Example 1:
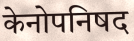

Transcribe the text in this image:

केनोपनिषद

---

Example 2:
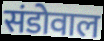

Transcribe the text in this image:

संडोवाल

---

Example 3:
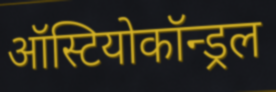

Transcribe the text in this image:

ऑस्टियोकॉन्ड्रल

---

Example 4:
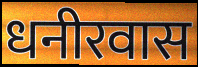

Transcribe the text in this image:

धनीरवास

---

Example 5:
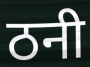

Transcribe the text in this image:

ठनी